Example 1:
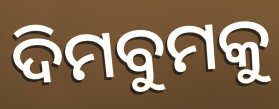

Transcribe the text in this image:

ଦିମବୁମକୁ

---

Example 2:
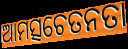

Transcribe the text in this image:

ଆମତ୍ସଚେତନତା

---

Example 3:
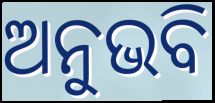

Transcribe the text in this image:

ଅନୁଭବି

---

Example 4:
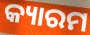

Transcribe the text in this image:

କ୍ୟାରମ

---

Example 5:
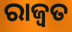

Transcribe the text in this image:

ରାଜ୍ୱତ